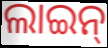
ଲାଇନ୍